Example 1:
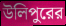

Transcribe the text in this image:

উলিপুরের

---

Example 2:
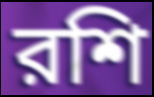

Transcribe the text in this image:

রশি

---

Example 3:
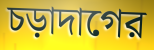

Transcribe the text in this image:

চড়াদাগের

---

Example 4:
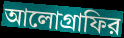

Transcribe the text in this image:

আলোগ্রাফির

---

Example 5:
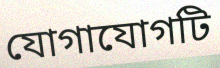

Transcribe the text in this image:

যোগাযোগটি